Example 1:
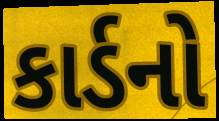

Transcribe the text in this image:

કાર્ડનો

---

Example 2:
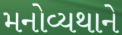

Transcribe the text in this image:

મનોવ્યથાને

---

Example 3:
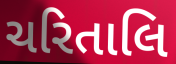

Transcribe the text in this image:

ચરિતાલિ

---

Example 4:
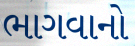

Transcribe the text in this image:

ભાગવાનો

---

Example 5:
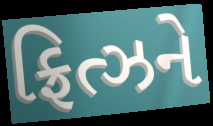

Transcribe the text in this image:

ફ્રિત્ઝને